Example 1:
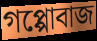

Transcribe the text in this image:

গপ্পোবাজ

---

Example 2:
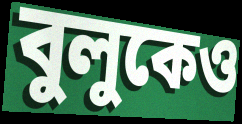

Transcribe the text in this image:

বুলুকেও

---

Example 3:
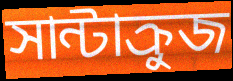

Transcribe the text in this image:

সান্টাক্রুজ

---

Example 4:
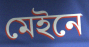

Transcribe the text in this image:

মেইনে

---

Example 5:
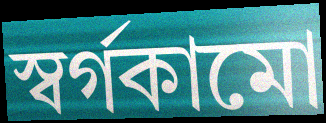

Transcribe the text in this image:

স্বর্গকামো